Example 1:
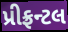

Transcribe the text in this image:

પ્રીફ્રન્ટલ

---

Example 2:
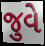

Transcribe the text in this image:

જુવે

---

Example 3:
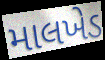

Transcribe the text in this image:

માલખેડ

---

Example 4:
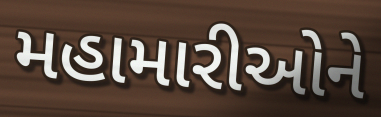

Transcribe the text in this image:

મહામારીઓને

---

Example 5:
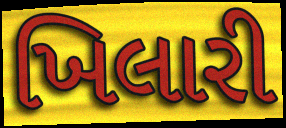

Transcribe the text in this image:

ખિલારી